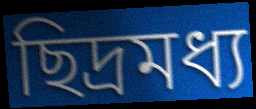
ছিদ্রমধ্য